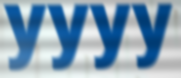
yyyy